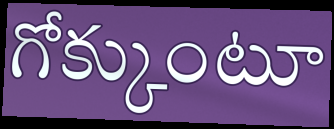
గోక్కుంటూ